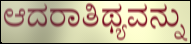
ಆದರಾತಿಥ್ಯವನ್ನು